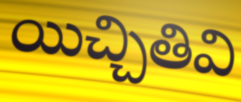
యిచ్చితివి